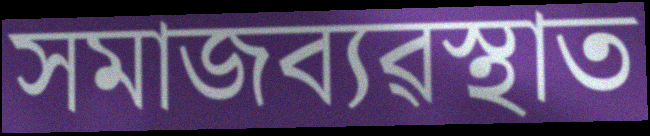
সমাজব্যৱস্থাত